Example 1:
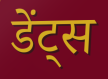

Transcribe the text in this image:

डेंट्स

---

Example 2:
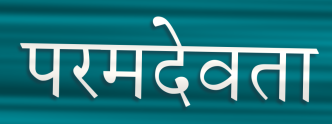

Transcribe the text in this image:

परमदेवता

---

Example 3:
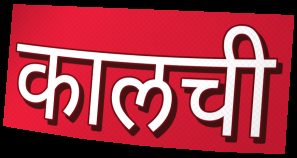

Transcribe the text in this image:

कालची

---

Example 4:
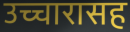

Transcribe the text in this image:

उच्चारासह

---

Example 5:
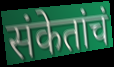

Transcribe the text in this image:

संकेतांचं